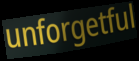
unforgetful